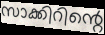
സാക്കിറിന്റെ